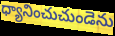
ధ్యానించుచుండెను